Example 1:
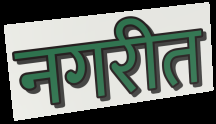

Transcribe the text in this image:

नगरीत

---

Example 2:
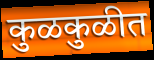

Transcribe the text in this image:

कुळकुळीत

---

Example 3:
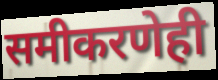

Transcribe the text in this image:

समीकरणेही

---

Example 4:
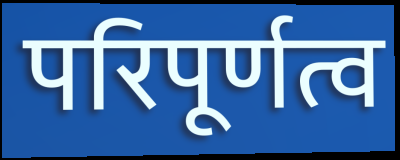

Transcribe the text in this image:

परिपूर्णत्व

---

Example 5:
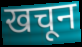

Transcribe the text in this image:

खचून